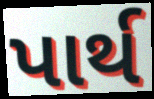
પાર્થ